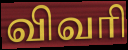
விவரி